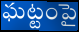
ఘట్టంపై